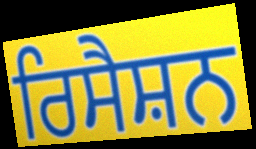
ਰਿਸੈਸ਼ਨ